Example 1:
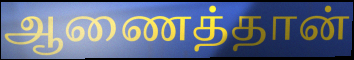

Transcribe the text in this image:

ஆணைத்தான்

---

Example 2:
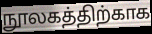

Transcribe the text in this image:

நூலகத்திற்காக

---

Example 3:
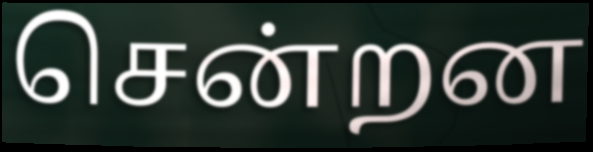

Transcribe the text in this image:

சென்றன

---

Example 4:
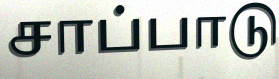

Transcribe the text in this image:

சாப்பாடு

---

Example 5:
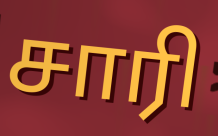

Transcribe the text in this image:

சாரி